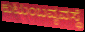
ಕುಟುಂಬವ್ಯವಸ್ಥೆ